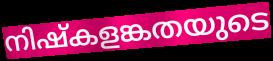
നിഷ്കളങ്കതയുടെ